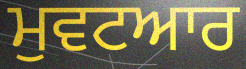
ਮੁਵਟਆਰ